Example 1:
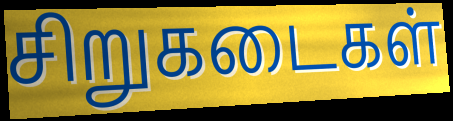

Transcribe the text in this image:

சிறுகடைகள்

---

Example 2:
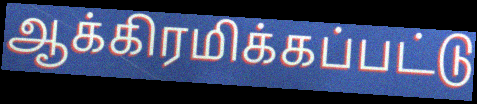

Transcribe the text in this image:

ஆக்கிரமிக்கப்பட்டு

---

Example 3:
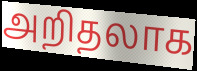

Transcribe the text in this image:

அறிதலாக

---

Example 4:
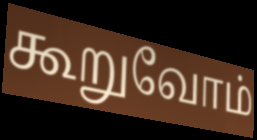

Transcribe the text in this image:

கூறுவோம்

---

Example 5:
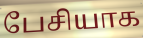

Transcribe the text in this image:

பேசியாக